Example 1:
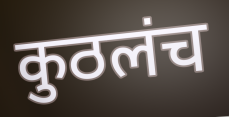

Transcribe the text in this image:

कुठलंच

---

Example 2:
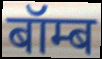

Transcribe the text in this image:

बॉम्ब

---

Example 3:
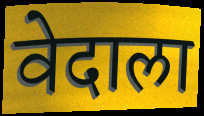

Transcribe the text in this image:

वेदाला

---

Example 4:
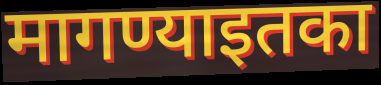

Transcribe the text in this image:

मागण्याइतका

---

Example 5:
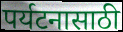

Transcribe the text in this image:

पर्यटनासाठी